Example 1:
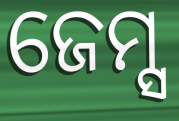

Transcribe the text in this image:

ଜେମ୍ସ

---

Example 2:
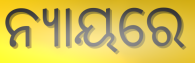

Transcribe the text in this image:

ନ୍ୟାୟରେ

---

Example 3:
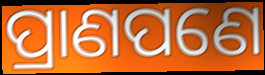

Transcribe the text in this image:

ପ୍ରାଣପଣେ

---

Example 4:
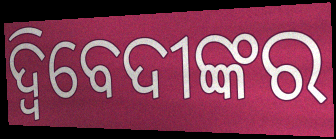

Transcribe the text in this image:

ଦ୍ଵିବେଦୀଙ୍କର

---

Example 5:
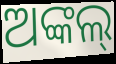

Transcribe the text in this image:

ଅଙ୍କଲ୍